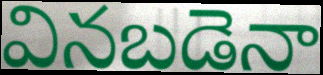
వినబడెనా